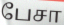
பேசா